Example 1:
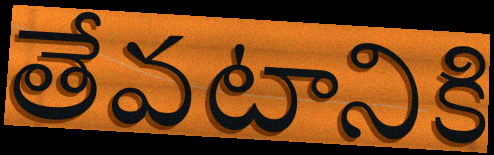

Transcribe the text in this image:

తేవటానికి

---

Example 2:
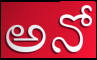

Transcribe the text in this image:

అనో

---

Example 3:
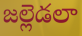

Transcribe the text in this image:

జల్లెడలా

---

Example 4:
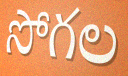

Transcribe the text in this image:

సోగల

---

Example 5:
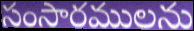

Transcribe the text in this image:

సంసారములను